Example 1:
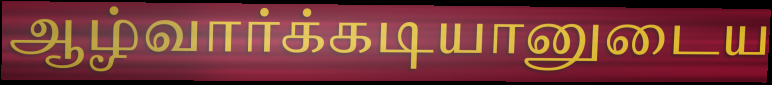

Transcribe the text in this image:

ஆழ்வார்க்கடியானுடைய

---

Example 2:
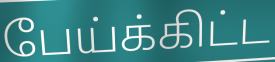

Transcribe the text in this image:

பேய்க்கிட்ட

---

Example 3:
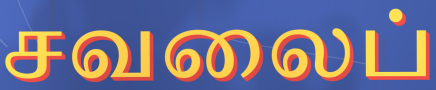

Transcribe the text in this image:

சவலைப்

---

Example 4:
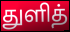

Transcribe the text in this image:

துளித்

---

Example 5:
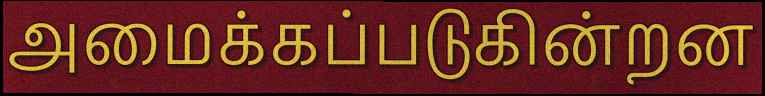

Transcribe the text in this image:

அமைக்கப்படுகின்றன